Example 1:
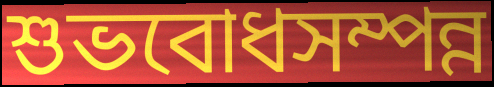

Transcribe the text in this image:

শুভবোধসম্পন্ন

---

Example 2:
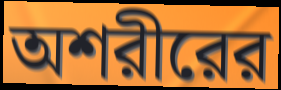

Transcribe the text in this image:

অশরীরের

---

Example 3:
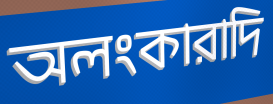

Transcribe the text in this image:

অলংকারাদি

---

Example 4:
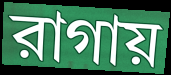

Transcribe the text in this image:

রাগায়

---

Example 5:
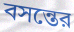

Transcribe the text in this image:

বসন্তের